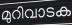
മുറിവാടക